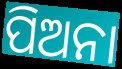
ପିଅନା